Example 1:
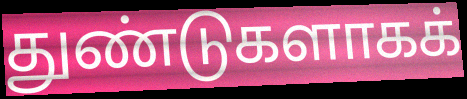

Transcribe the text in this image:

துண்டுகளாகக்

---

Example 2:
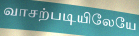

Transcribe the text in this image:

வாசற்படியிலேயே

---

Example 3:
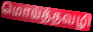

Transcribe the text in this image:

மொய்த்தவழி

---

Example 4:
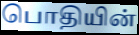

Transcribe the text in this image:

பொதியின்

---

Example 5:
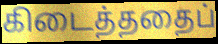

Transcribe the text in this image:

கிடைத்ததைப்